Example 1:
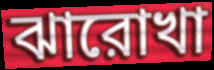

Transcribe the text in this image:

ঝারোখা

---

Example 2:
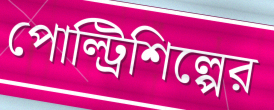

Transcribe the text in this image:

পোল্ট্রিশিল্পের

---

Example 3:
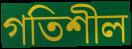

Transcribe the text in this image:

গতিশীল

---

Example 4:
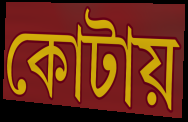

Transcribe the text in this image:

কোটায়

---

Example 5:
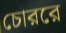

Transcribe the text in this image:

চোররে